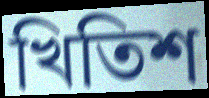
খিতিশ